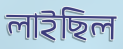
লাইছিল